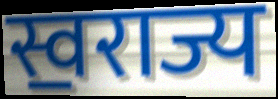
स्व॒राज्य